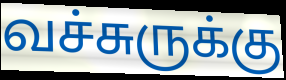
வச்சுருக்கு